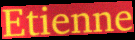
Etienne